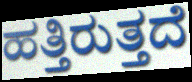
ಹತ್ತಿರುತ್ತದೆ